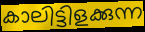
കാലിട്ടിളക്കുന്ന